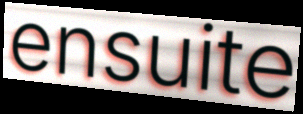
ensuite